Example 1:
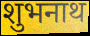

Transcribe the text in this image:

शुभनाथ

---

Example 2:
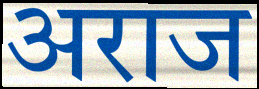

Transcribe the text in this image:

अराज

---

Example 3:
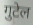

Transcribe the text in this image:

गुटेल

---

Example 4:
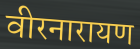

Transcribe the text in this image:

वीरनारायण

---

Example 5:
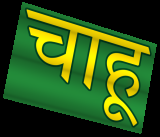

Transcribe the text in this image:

चाहू